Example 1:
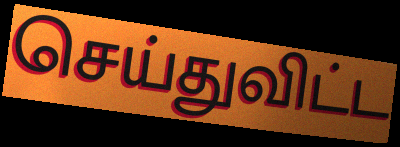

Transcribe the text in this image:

செய்துவிட்ட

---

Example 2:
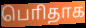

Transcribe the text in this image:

பெரிதாக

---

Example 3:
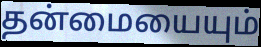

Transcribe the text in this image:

தன்மையையும்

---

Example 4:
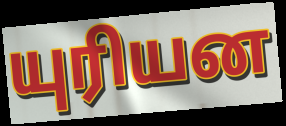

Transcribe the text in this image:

யுரியன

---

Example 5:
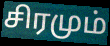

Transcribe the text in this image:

சிரமும்